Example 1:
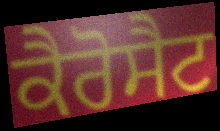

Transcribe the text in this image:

ਕੈਰੋਸੈਟ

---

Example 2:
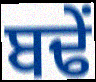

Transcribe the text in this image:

ਬਢੇਂ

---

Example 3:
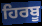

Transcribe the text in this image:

ਹਿਰਬੂ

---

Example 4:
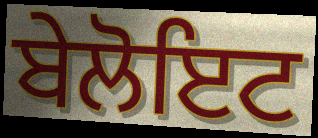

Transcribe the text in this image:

ਬੇਲੋਇਟ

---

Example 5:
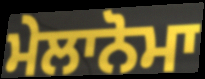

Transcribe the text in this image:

ਮੇਲਾਨੋਮਾ